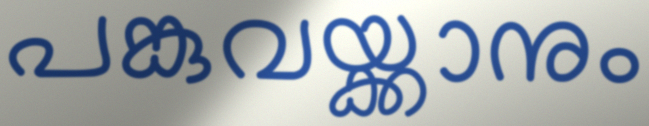
പങ്കുവയ്ക്കാനും